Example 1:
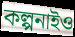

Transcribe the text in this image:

কল্পনাইও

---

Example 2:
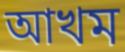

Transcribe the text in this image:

আখম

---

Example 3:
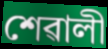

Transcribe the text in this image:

শেৱালী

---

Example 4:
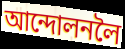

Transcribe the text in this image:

আন্দোলনলৈ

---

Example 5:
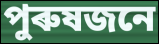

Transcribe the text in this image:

পুৰুষজনে